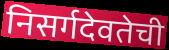
निसर्गदेवतेची